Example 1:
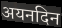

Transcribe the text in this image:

अयनदिन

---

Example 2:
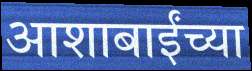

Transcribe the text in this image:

आशाबाईंच्या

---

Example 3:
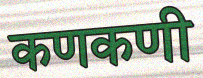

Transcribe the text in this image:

कणकणी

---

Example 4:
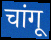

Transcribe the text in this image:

चांगू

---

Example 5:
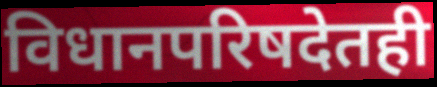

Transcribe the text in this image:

विधानपरिषदेतही